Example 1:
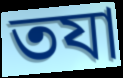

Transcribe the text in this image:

তযা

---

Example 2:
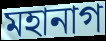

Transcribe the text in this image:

মহানাগ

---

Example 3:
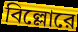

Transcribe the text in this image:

বিল্লোরে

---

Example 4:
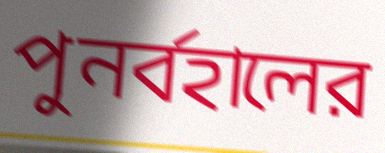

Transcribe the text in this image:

পুনর্বহালের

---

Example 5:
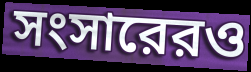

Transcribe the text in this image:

সংসারেরও